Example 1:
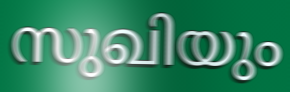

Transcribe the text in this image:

സുഖിയും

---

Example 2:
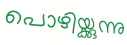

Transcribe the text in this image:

പൊഴിയ്ക്കുന്നു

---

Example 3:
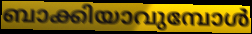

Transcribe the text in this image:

ബാക്കിയാവുമ്പോൾ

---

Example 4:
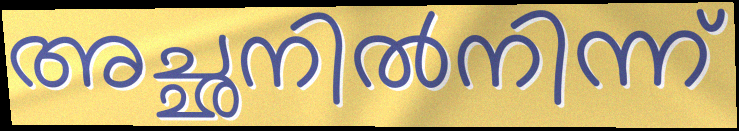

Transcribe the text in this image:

അച്ഛനിൽനിന്ന്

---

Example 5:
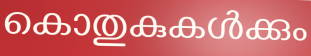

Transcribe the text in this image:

കൊതുകുകൾക്കും